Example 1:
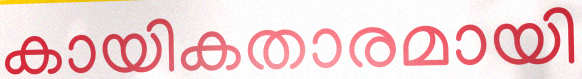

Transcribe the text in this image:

കായികതാരമായി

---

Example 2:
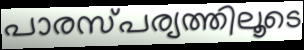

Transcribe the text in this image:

പാരസ്പര്യത്തിലൂടെ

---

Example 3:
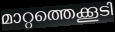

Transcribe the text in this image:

മാറ്റത്തെക്കൂടി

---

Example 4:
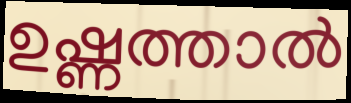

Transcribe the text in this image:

ഉഷ്ണത്താൽ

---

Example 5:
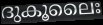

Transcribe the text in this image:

ദുകൂലൈഃ